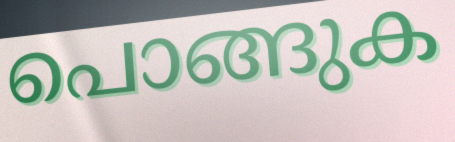
പൊങ്ങുക